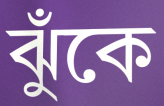
ঝুঁকে